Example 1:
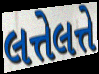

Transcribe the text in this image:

લત્તેલત્તે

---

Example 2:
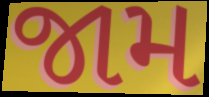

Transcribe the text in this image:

જામ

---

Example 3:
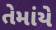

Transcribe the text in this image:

તેમાંયે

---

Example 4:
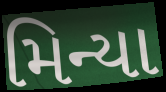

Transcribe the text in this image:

મિન્યા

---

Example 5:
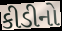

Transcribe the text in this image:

કીડીનો